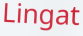
Lingat